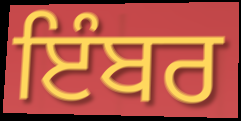
ਇੰਬਰ